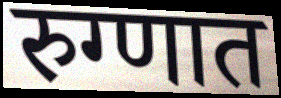
रुग्णात